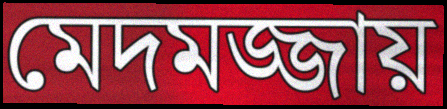
মেদমজ্জায়